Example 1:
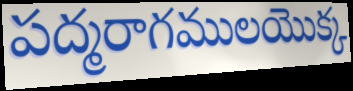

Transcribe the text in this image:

పద్మరాగములయొక్క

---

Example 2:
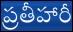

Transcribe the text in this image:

ప్రతీహారీ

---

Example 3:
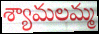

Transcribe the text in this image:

శ్యామలమ్మ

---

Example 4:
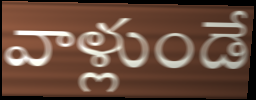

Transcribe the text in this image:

వాళ్లుండే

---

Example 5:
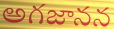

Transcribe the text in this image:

అగజానన